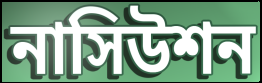
নাসিউশন